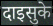
दाइसुके